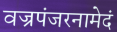
वज्रपंजरनामेदं